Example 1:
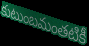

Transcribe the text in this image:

కుటుంబమంతటికీ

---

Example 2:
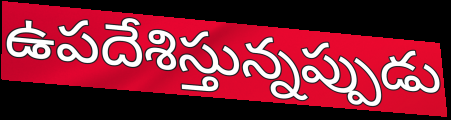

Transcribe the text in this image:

ఉపదేశిస్తున్నప్పుడు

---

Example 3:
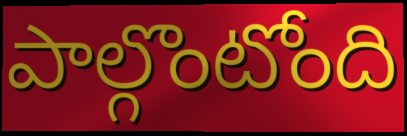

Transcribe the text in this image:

పాల్గొంటోంది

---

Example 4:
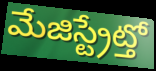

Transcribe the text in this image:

మేజిస్ట్రేట్తో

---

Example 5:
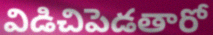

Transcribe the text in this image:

విడిచిపెడతారో